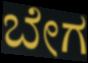
ಬೇಗ